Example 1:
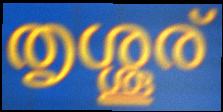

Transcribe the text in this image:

തൃശ്ശൂര്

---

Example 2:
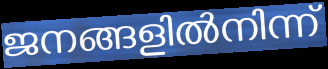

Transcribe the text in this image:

ജനങ്ങളിൽനിന്ന്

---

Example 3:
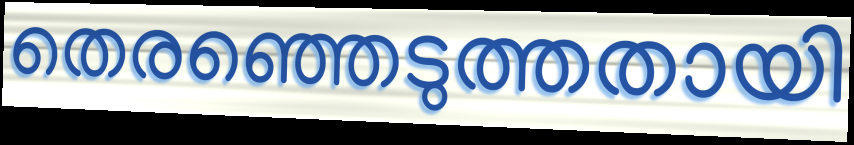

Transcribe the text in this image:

തെരഞ്ഞെടുത്തതായി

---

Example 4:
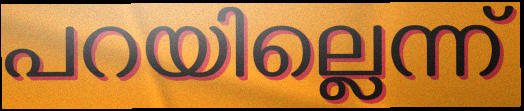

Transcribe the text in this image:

പറയില്ലെന്ന്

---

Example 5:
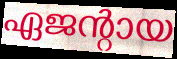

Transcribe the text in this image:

ഏജന്റായ